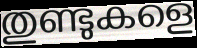
തുണ്ടുകളെ